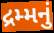
દ્રમ્મનું